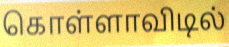
கொள்ளாவிடில்